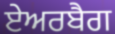
ਏਅਰਬੈਗ